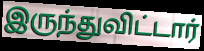
இருந்துவிட்டார்